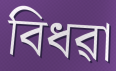
বিধৱা